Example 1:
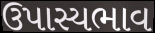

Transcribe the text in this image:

ઉપાસ્યભાવ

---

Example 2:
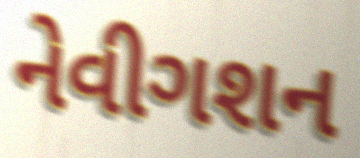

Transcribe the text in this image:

નેવીગશન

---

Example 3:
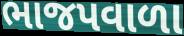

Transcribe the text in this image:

ભાજપવાળા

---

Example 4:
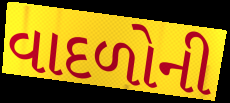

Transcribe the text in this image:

વાદળોની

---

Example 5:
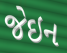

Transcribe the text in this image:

જેઇન